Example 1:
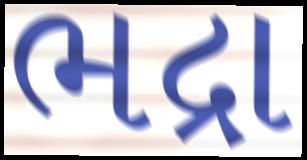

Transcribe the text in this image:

ભદ્રા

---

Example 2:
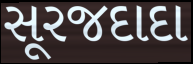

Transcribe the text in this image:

સૂરજદાદા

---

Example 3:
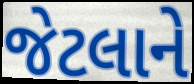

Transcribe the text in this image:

જેટલાને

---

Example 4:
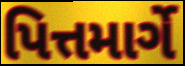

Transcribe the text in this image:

પિત્તમાર્ગે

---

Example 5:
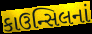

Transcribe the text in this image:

કાઉન્સિલનાં